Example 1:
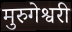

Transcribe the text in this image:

मुरुगेश्वरी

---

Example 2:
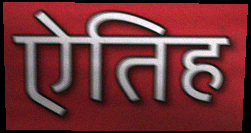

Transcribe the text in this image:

ऐतिह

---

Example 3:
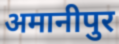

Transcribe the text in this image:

अमानीपुर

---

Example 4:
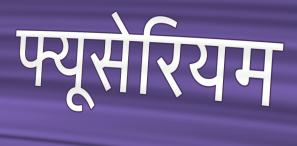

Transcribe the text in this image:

फ्यूसेरियम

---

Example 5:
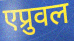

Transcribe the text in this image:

एप्रुवल